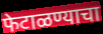
फेटाळण्याचा